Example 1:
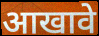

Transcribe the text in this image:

आखावे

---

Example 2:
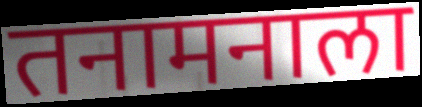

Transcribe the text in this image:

तनामनाला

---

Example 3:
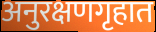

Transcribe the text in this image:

अनुरक्षणगृहात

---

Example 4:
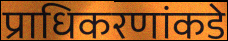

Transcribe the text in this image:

प्राधिकरणांकडे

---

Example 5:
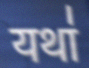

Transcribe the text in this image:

यथा॑